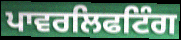
ਪਾਵਰਲਿਫਟਿੰਗ